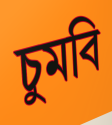
চুমবি